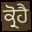
ਕ੍ਰੋਹੈ